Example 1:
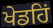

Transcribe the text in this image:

ਖੇਡਹਿਂ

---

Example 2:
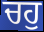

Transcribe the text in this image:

ਚਹੁ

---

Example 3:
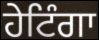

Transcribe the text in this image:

ਹੇਟਿੰਗਾ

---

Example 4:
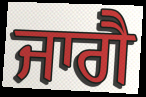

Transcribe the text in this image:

ਜਾਗੈ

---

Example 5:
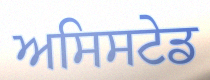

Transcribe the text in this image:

ਅਸਿਸਟੇਡ